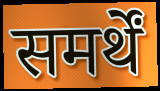
समर्थें